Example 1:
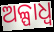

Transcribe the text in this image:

ଅଳ୍ପାଧ୍ଵ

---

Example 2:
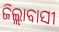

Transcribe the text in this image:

ଜିଲ୍ଲାବାସୀ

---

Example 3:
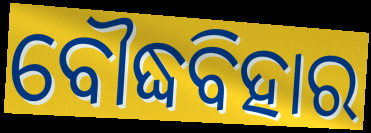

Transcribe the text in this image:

ବୌଦ୍ଧବିହାର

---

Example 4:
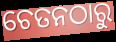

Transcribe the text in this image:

ଚେତନଠାରୁ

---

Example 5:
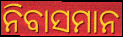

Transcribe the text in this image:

ନିବାସମାନ